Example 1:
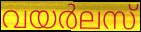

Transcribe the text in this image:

വയർലസ്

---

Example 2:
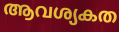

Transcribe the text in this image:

ആവശ്യകത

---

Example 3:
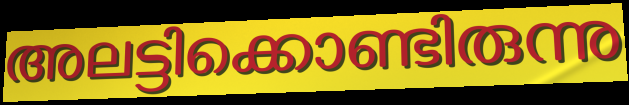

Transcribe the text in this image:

അലട്ടിക്കൊണ്ടിരുന്നു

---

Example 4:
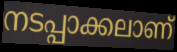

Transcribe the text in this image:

നടപ്പാക്കലാണ്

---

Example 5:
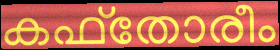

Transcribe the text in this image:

കഫ്തോരീം